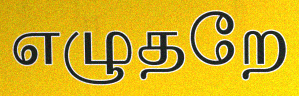
எழுதறே